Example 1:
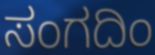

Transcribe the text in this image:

ಸಂಗದಿಂ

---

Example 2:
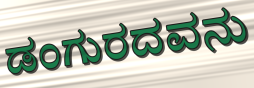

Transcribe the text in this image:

ಡಂಗುರದವನು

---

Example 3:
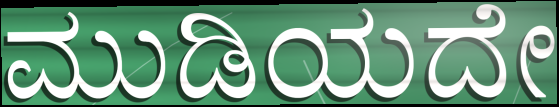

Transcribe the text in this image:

ಮುಡಿಯದೇ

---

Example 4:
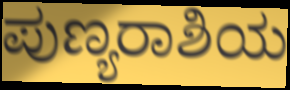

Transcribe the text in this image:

ಪುಣ್ಯರಾಶಿಯ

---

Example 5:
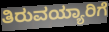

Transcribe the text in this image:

ತಿರುವಯ್ಯಾರಿಗೆ